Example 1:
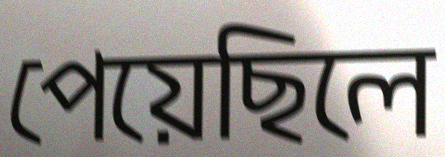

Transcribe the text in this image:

পেয়েছিলে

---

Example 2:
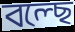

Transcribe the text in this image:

বল্ছে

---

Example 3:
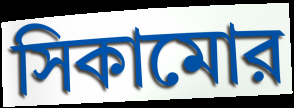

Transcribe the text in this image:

সিকামোর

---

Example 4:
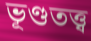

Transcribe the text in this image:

ভূণ্ডতত্ত্ব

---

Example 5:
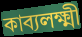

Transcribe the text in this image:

কাব্যলক্ষ্মী